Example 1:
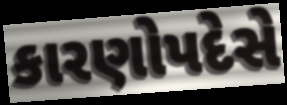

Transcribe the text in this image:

કારણોપદેસે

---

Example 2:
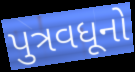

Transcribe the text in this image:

પુત્રવધૂનો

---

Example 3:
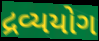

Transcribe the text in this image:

દ્રવ્યયોગ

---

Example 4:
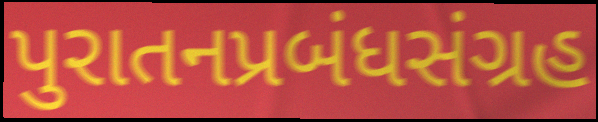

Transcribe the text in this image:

પુરાતનપ્રબંધસંગ્રહ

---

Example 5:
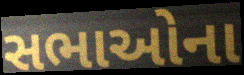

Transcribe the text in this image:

સભાઓના